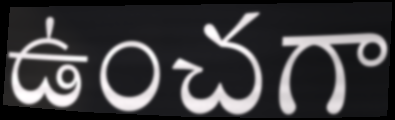
ఉంచగా